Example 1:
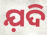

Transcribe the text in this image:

ଯ଼ଦି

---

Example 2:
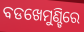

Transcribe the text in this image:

ବଡଖେମୁଣ୍ଡିରେ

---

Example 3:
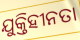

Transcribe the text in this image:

ଯୁକ୍ତିହୀନତା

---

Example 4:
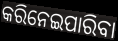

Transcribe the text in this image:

କରିନେଇପାରିବା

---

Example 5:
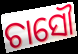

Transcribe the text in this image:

ଚାସୌ